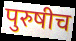
पुरुषीच